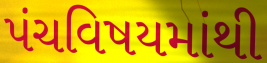
પંચવિષયમાંથી